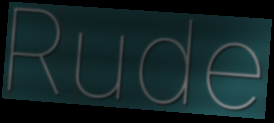
Rude